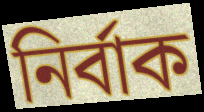
নিৰ্বাক